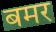
बमर